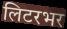
लिटरभर